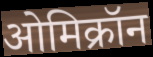
ओमिक्रॉन